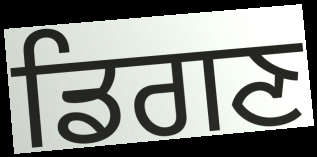
ਡਿਗਣ